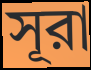
সূরা